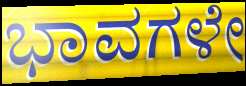
ಭಾವಗಳೇ